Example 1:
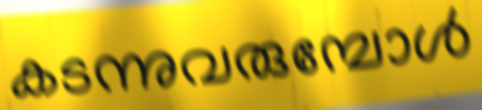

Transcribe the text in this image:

കടന്നുവരുമ്പോൾ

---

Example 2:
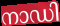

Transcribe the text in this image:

നാഡി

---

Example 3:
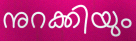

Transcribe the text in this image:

നുറക്കിയും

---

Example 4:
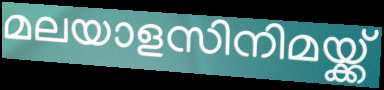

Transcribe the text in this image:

മലയാളസിനിമയ്ക്ക്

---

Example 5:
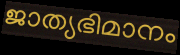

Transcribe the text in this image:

ജാത്യഭിമാനം